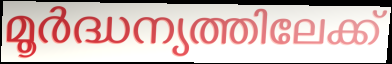
മൂർദ്ധന്യത്തിലേക്ക്